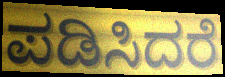
ಪಡಿಸಿದರೆ